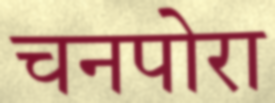
चनपोरा